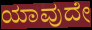
ಯಾವುದೇ